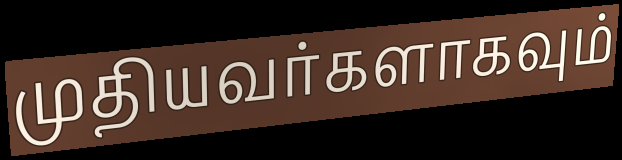
முதியவர்களாகவும்